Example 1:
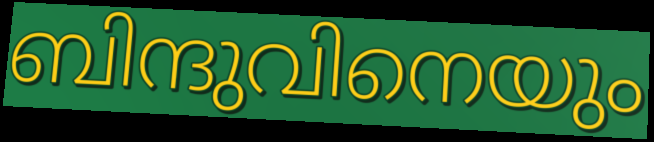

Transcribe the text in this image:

ബിന്ദുവിനെയും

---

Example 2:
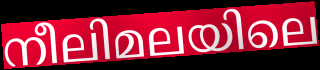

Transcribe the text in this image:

നീലിമലയിലെ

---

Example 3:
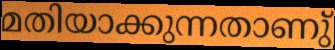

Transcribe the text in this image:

മതിയാക്കുന്നതാണു്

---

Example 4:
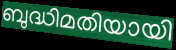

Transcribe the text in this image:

ബുദ്ധിമതിയായി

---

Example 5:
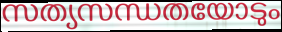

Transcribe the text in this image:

സത്യസന്ധതയോടും